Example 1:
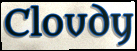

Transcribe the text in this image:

Cloudy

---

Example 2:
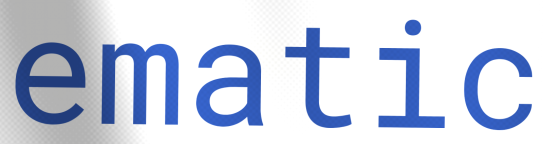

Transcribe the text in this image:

ematic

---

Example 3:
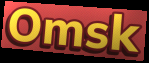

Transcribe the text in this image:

Omsk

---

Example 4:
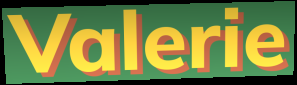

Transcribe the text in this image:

Valerie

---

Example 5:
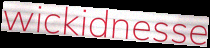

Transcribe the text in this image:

wickidnesse